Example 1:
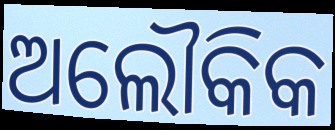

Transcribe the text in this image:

ଅଲୌକିକ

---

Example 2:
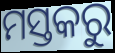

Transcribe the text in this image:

ମସ୍ତକରୁ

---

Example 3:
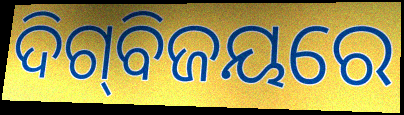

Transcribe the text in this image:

ଦିଗ୍‌ବିଜୟରେ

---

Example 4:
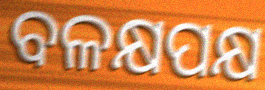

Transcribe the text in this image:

ବଳକ୍ଷପକ୍ଷ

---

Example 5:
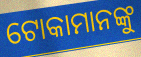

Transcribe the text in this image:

ଟୋକାମାନଙ୍କୁ